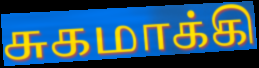
சுகமாக்கி